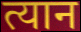
त्यान